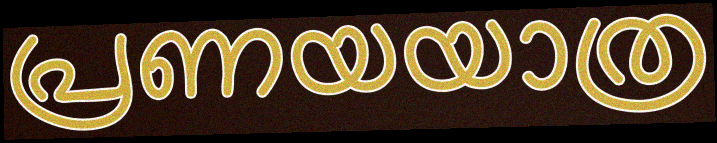
പ്രണയയാത്ര